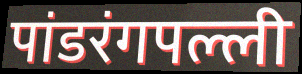
पांडरंगपल्ली